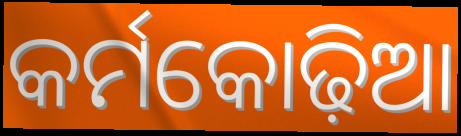
କର୍ମକୋଢ଼ିଆ